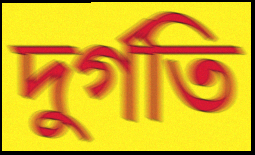
দুর্গতি